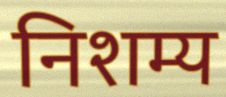
निशम्य